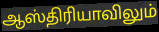
ஆஸ்திரியாவிலும்